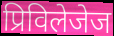
प्रिविलेजेज